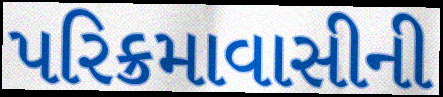
પરિક્રમાવાસીની